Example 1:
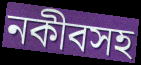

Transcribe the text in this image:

নকীবসহ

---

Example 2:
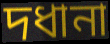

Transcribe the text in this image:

দধানা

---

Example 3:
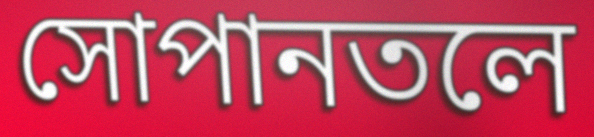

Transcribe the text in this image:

সোপানতলে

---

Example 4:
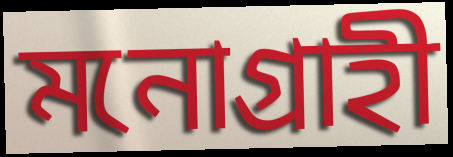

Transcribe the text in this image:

মনোগ্রাহী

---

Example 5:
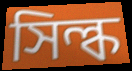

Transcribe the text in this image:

সিল্ক